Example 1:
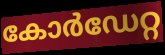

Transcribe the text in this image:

കോർഡേറ്റ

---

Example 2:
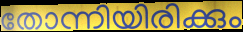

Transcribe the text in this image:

തോന്നിയിരിക്കും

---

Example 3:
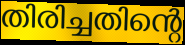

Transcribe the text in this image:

തിരിച്ചതിന്റെ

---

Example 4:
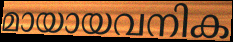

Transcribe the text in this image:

മായായവനിക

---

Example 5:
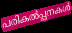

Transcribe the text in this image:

പരികൽപ്പനകൾ